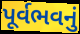
પૂર્વભવનું